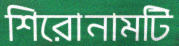
শিরোনামটি